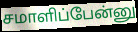
சமாளிப்பேன்னு